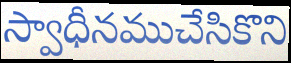
స్వాధీనముచేసికొని